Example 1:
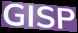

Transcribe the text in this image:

GISP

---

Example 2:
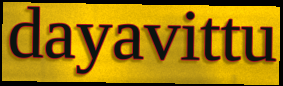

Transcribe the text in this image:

dayavittu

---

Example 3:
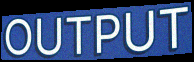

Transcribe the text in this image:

OUTPUT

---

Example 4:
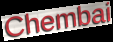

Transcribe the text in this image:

Chembai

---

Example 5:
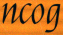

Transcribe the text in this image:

ncog